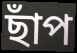
ছাঁপ